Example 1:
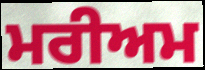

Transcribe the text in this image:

ਮਰੀਅਮ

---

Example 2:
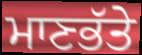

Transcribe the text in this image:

ਮਾਣਭੱਤੇ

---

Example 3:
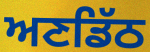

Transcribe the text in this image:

ਅਣਡਿੱਠ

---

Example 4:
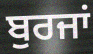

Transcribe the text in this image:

ਬੁਰਜਾਂ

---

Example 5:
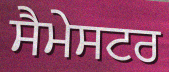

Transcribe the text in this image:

ਸੈਮੇਸਟਰ